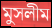
মুসলীম